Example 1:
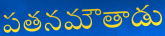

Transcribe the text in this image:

పతనమౌతాడు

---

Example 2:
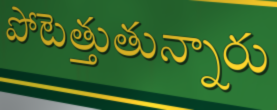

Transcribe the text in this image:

పోటెత్తుతున్నారు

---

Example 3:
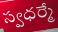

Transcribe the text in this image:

స్వధర్మే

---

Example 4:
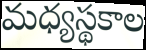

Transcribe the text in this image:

మధ్యస్థకాల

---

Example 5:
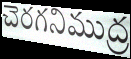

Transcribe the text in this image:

చెరగనిముద్ర